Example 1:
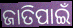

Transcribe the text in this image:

ଜାତିପାଇଁ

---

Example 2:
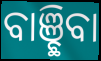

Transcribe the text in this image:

ବାଞ୍ଛିବା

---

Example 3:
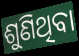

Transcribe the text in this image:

ଶୁଣିଥିବା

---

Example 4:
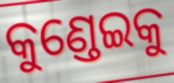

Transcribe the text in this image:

କୁଣ୍ଡେଇକୁ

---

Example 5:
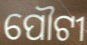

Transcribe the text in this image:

ପୌଟୀ